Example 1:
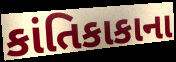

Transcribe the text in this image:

કાંતિકાકાના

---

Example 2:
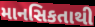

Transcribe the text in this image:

માનસિકતાથી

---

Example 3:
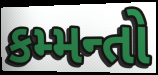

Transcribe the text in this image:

કમ્મન્તો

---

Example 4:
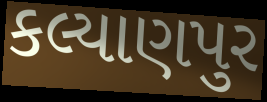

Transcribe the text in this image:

કલ્યાણપુર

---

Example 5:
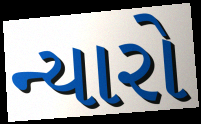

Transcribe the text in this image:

ન્યારો